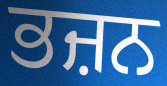
ਭਜ਼ਨ